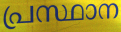
പ്രസ്ഥാന